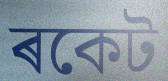
ৰকেট